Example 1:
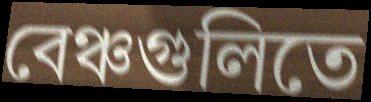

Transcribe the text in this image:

বেঞ্চগুলিতে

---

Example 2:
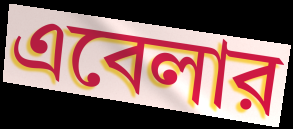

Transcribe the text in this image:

এবেলার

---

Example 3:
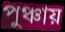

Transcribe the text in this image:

পুঞ্চায়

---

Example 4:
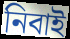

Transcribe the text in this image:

নিবাই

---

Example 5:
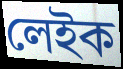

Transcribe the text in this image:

লেইক